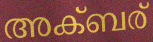
അക്ബര്